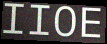
IIOE